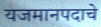
यजमानपदाचे